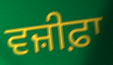
ਵਜ਼ੀਫ਼ਾ